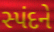
સ્પંદને